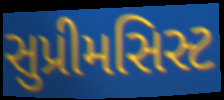
સુપ્રીમસિસ્ટ